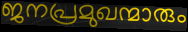
ജനപ്രമുഖന്മാരും